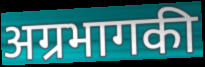
अग्रभागकी